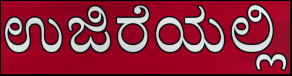
ಉಜಿರೆಯಲ್ಲಿ